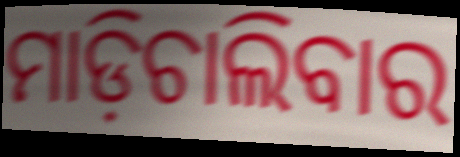
ମାଡ଼ିଚାଲିବାର